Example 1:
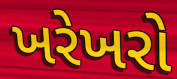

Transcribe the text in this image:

ખરેખરો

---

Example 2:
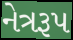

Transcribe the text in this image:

નેત્રરૂપ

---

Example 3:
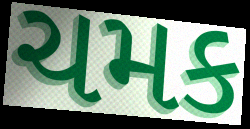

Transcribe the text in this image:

ચમક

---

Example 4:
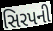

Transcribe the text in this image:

સિરપની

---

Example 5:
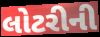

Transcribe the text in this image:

લોટરીની